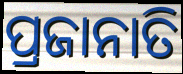
ପ୍ରଜାନାତି